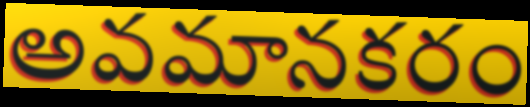
అవమానకరం